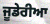
ਜੂਡੇਰੀਆ